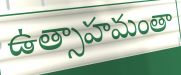
ఉత్సాహమంతా